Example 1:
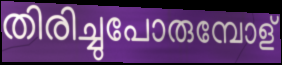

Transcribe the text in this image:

തിരിച്ചുപോരുമ്പോള്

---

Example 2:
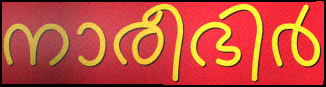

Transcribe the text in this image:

നാരീഭിർ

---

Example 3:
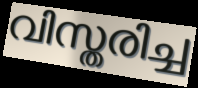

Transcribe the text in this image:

വിസ്തരിച്ച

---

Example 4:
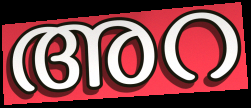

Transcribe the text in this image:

അറ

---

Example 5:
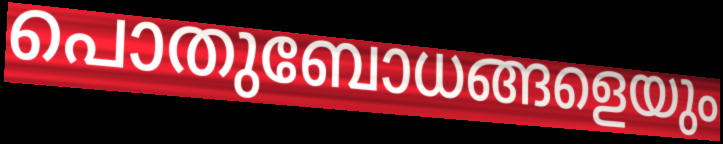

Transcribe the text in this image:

പൊതുബോധങ്ങളെയും